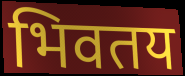
भिवतय